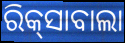
ରିକ୍‌ସାବାଲା